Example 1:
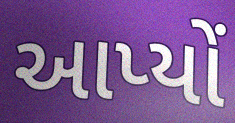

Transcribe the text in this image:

આપ્યોં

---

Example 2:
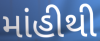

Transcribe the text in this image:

માંહીથી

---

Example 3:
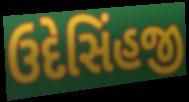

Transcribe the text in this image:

ઉદેસિંહજી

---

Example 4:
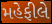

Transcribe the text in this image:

મહેફીલે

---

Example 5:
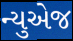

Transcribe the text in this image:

ન્યુએજ